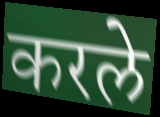
करले